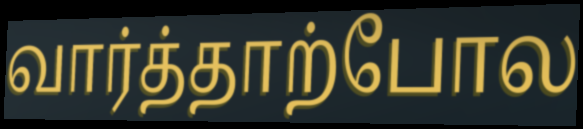
வார்த்தாற்போல